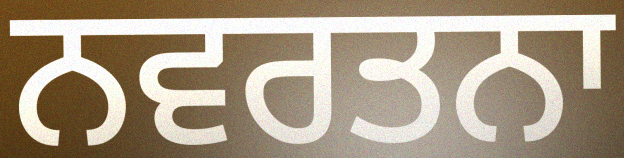
ਨਵਰਤਨਾ